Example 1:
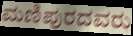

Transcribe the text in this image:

ಮಣಿಪುರದವರು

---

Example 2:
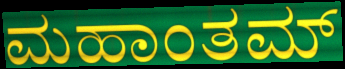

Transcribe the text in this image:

ಮಹಾಂತಮ್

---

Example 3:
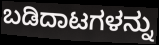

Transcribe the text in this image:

ಬಡಿದಾಟಗಳನ್ನು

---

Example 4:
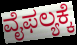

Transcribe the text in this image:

ವೈಫಲ್ಯಕ್ಕೆ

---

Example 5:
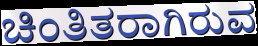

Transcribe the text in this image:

ಚಿಂತಿತರಾಗಿರುವ